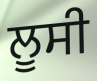
ਲੂਸੀ